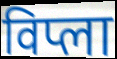
विप्ला